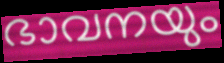
ഭാവനയും